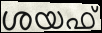
ശയഫ്